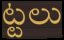
ట్టలు